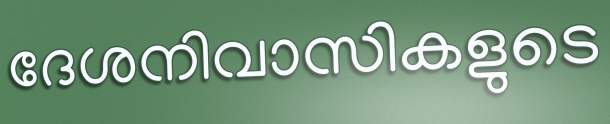
ദേശനിവാസികളുടെ